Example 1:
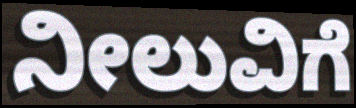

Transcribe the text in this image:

ನೀಲುವಿಗೆ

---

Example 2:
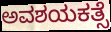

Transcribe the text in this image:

ಅವಶಯಕತ್ಸೆ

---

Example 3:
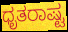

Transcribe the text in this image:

ಧೃತರಾಷ್ಟ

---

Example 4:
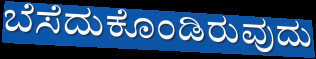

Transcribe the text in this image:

ಬೆಸೆದುಕೊಂಡಿರುವುದು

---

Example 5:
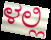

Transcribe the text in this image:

ಳಲ್ಲಿ